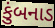
કુંબનાડ